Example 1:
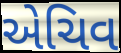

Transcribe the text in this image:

એચિવ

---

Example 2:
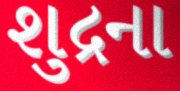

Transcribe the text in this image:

શુદ્રના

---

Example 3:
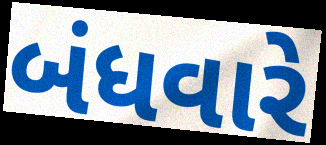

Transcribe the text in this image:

બંધવારે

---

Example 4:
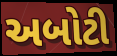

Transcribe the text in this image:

અબોટી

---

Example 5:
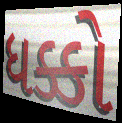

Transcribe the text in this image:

ધક્કો